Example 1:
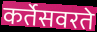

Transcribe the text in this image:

कर्तेसवरते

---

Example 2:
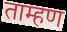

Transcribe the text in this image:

ताम्हण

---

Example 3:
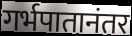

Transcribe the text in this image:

गर्भपातानंतर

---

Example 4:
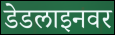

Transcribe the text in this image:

डेडलाइनवर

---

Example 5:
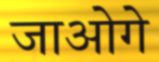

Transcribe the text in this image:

जाओगे